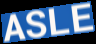
ASLE